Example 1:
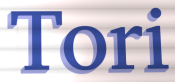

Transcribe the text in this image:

Tori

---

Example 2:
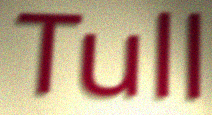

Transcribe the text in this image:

Tull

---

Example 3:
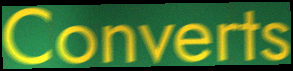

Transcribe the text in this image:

Converts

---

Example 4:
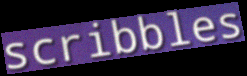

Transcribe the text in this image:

scribbles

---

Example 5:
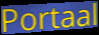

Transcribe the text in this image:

Portaal